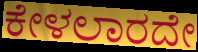
ಕೇಳಲಾರದೇ